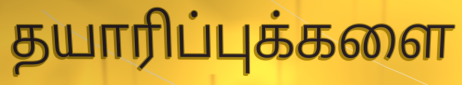
தயாரிப்புக்களை